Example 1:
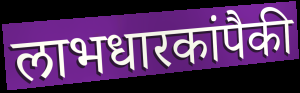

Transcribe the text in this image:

लाभधारकांपैकी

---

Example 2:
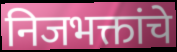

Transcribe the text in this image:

निजभक्तांचे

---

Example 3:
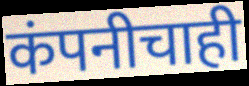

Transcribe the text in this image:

कंपनीचाही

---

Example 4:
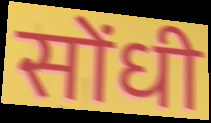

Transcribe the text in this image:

सोंधी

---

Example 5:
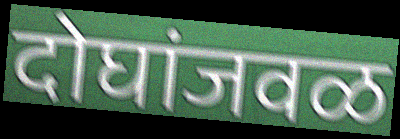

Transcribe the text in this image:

दोघांजवळ